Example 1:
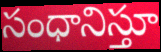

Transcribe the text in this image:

సంధానిస్తూ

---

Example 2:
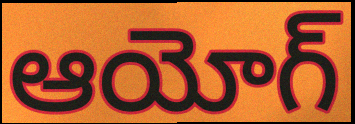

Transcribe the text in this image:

ఆయోగ్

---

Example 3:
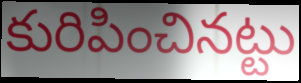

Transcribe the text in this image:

కురిపించినట్టు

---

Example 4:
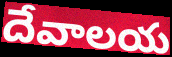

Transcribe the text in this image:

దేవాలయ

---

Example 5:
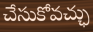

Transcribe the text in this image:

చేసుకోవచ్ఛు